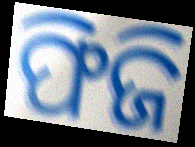
ଫିଜି